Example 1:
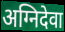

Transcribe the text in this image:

अग्निदेवा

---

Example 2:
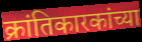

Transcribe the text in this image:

क्रांतिकारकांच्या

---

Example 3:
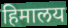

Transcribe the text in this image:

हिमालय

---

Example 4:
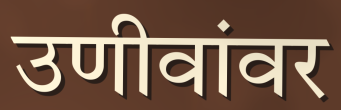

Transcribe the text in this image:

उणीवांवर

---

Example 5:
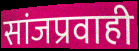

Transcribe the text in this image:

सांजप्रवाही